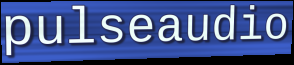
pulseaudio